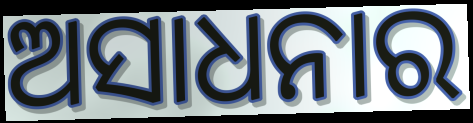
ଅସାଧନାର